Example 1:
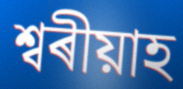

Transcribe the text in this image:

শ্বৰীয়াহ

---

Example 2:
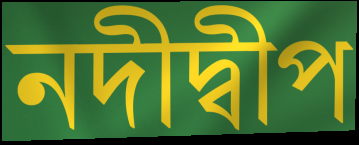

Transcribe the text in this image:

নদীদ্বীপ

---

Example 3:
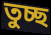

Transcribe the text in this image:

তুচ্ছ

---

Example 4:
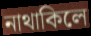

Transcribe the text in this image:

নাথাকিলে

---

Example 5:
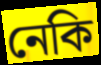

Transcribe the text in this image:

নেকি